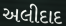
અલીદાદ